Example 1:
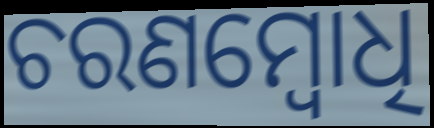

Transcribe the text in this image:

ଚରଣମ୍ବୋଧି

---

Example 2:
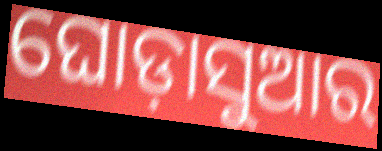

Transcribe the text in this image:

ଘୋଡ଼ାସୁଆର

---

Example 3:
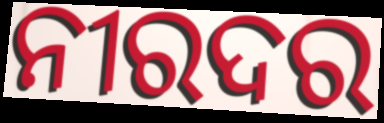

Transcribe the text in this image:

ନୀରଦର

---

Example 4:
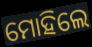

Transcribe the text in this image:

ମୋହିଲେ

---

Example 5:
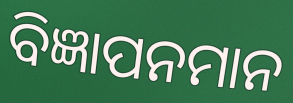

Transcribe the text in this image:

ବିଜ୍ଞାପନମାନ